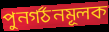
পুনর্গঠনমূলক